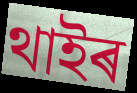
থাইৰ